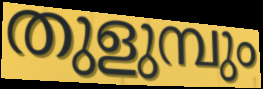
തുളുമ്പും